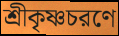
শ্রীকৃষ্ণচরণে